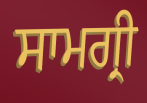
ਸਾਮਗ੍ਰੀ